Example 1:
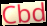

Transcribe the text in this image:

Cbd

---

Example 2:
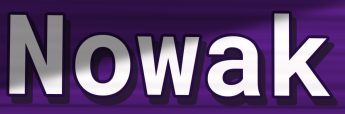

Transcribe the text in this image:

Nowak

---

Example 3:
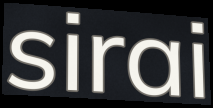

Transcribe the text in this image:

sirai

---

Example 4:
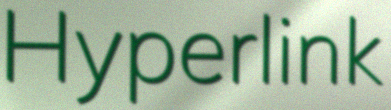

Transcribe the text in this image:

Hyperlink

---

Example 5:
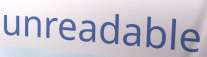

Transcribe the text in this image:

unreadable